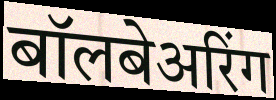
बॉलबेअरिंग